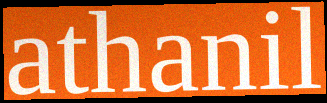
athanil